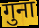
गुना